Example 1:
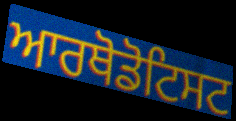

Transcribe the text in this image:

ਆਰਥੋਡੋਟਿਸਟ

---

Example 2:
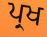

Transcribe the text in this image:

ਪ੍ਰਖ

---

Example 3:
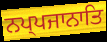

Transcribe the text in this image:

ਨਪ੍ਪਜਾਨਾਤਿ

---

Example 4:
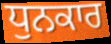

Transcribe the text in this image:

ਧੁਨਕਾਰ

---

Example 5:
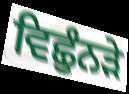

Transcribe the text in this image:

ਵਿਛੁੰਨੜੇ